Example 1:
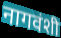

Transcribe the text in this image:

नागवंशी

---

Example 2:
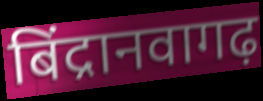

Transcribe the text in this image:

बिंद्रानवागढ़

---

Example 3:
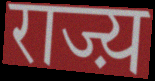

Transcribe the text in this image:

राज्य़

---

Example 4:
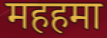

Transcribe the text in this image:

महहमा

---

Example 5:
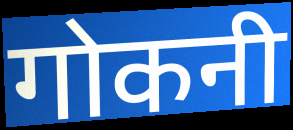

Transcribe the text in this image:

गोकनी